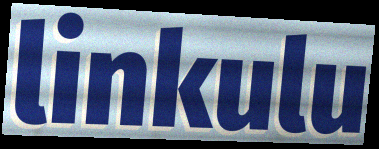
linkulu